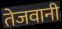
तेजवानी